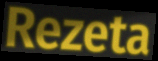
Rezeta